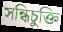
সন্ধিচুক্তি